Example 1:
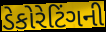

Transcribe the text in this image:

ડેકોરેટિંગની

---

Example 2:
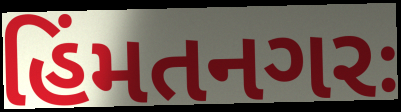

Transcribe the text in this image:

હિંમતનગરઃ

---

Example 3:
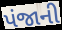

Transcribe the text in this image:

પંજાની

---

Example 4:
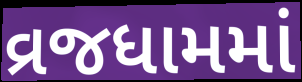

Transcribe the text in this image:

વ્રજધામમાં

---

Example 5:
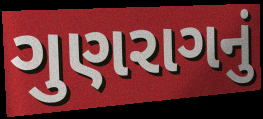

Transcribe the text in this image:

ગુણરાગનું